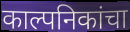
काल्पनिकांचा